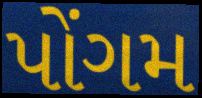
પોંગમ